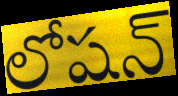
లోషన్